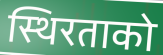
स्थिरताको